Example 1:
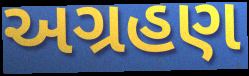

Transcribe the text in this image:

અગ્રહણ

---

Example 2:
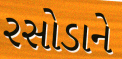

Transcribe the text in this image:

રસોડાને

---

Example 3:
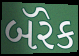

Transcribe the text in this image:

બૅરેક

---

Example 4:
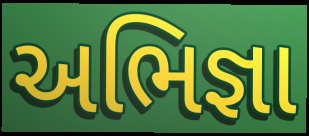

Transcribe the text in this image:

અભિજ્ઞા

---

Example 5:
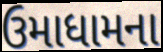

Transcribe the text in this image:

ઉમાધામના